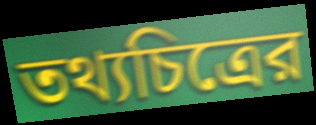
তথ্যচিত্রের